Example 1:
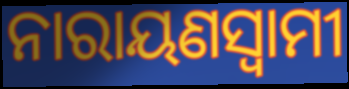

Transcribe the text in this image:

ନାରାୟଣସ୍ଵାମୀ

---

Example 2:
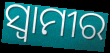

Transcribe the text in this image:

ସ୍ଵାମୀର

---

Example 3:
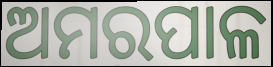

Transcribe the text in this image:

ଅମରପାଳ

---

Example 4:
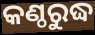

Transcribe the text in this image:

କଣ୍ଠରୁଦ୍ଧ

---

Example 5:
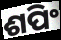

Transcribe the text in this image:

ଶପିଂ